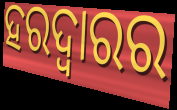
ହରଦ୍ୱାରର